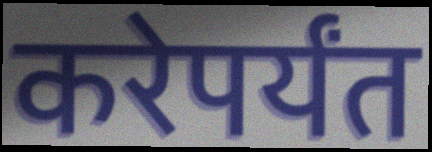
करेपर्यंत